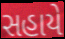
સહાયે